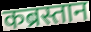
कब्रस्तान